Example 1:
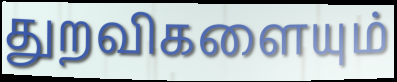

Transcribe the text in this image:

துறவிகளையும்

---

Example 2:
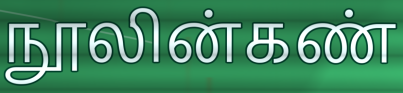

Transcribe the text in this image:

நூலின்கண்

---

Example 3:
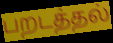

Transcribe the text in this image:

பறடத்தல்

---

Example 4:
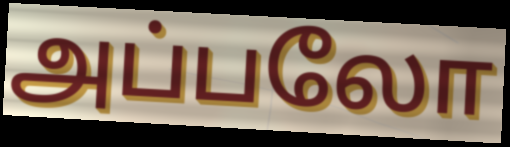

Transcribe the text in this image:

அப்பலோ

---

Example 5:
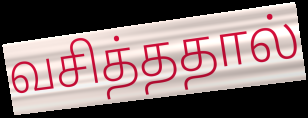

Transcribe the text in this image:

வசித்ததால்